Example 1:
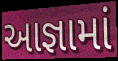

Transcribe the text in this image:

આજ્ઞામાં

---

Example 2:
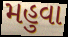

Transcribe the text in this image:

મહુવા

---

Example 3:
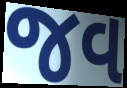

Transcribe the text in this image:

જવ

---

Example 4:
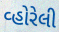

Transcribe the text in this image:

વ્હોરેલી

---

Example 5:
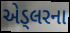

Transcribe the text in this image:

એડ્લરના